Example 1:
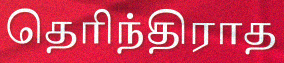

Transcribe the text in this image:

தெரிந்திராத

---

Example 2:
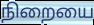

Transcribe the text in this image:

நிறையை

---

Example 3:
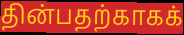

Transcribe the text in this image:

தின்பதற்காகக்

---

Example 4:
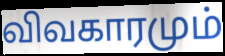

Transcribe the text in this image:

விவகாரமும்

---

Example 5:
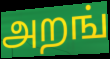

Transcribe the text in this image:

அறங்